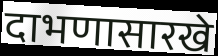
दाभणासारखे